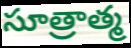
సూత్రాత్మ